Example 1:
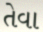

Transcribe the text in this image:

તેવા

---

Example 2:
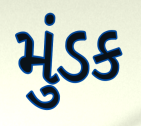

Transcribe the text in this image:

મુંડક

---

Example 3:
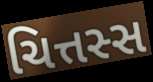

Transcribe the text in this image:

ચિત્તસ્સ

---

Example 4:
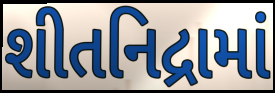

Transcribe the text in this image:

શીતનિદ્રામાં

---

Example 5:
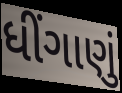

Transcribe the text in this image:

ધીંગાણું